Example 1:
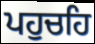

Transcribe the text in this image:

ਪਹੁਚਹਿ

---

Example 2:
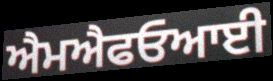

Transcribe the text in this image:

ਐਮਐਫਓਆਈ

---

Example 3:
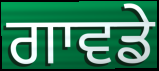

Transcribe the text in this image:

ਗਾਵਡੇ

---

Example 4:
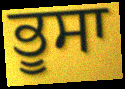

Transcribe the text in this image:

ਭੂਸਾ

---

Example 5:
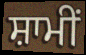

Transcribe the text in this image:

ਸ਼ਾਮੀਂ